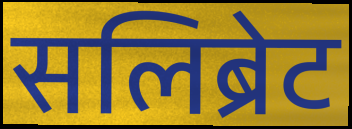
सलिब्रेट